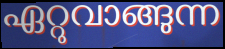
ഏറ്റുവാങ്ങുന്ന